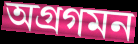
অগ্রগমন